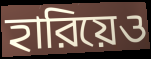
হারিয়েও